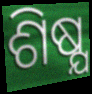
ଶିଷ୍ଯ